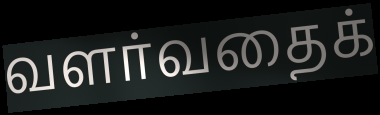
வளர்வதைக்